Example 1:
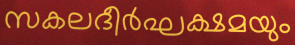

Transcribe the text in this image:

സകലദീർഘക്ഷമയും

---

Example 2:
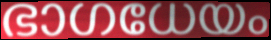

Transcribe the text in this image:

ഭാഗധേയം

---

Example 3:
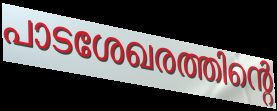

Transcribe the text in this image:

പാടശേഖരത്തിന്റെ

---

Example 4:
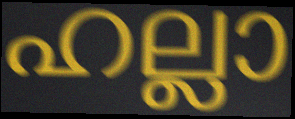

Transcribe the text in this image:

ഹല്ലാ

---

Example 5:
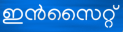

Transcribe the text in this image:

ഇൻസൈറ്റ്